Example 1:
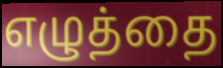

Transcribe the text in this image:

எழுத்தை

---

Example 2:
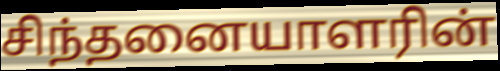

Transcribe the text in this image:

சிந்தனையாளரின்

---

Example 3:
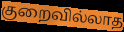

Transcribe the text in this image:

குறைவில்லாத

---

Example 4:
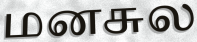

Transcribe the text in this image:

மனசுல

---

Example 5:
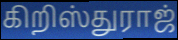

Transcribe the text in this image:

கிறிஸ்துராஜ்